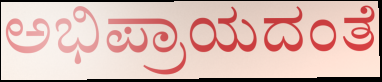
ಅಭಿಪ್ರಾಯದಂತೆ